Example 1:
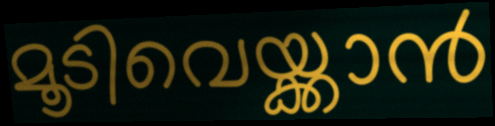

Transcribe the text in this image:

മൂടിവെയ്ക്കാൻ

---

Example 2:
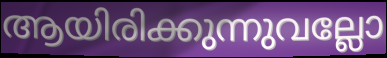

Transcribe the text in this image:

ആയിരിക്കുന്നുവല്ലോ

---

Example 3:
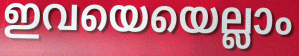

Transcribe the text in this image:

ഇവയെയെല്ലാം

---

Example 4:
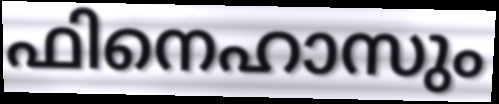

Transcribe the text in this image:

ഫിനെഹാസും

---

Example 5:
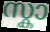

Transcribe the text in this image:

സ്കാ